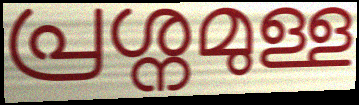
പ്രശ്നമുള്ള